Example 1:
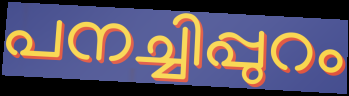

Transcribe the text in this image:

പനച്ചിപ്പുറം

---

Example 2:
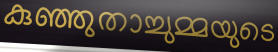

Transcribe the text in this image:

കുഞ്ഞുതാച്ചുമ്മയുടെ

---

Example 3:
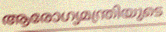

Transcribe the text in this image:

ആരോഗ്യമന്ത്രിയുടെ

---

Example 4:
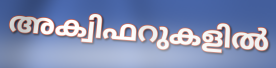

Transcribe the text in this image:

അക്വിഫറുകളിൽ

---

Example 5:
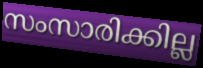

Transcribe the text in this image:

സംസാരിക്കില്ല